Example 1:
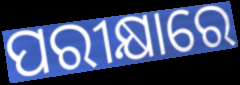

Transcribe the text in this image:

ପରୀକ୍ଷାରେ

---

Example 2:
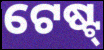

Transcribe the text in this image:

ଟେଷ୍ଟ୍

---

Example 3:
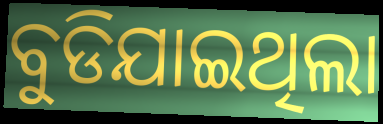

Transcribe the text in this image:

ବୁଡିଯାଇଥିଲା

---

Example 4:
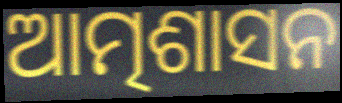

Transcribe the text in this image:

ଆତ୍ମଶାସନ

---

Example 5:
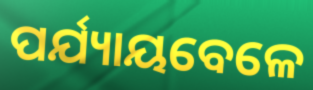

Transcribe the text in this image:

ପର୍ଯ୍ୟାୟବେଳେ